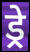
ड्रे